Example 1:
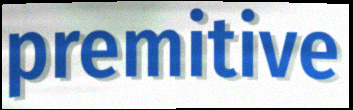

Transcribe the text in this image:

premitive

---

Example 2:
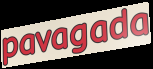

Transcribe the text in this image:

pavagada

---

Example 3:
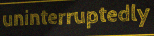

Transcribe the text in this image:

uninterruptedly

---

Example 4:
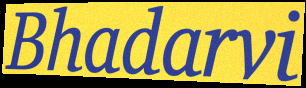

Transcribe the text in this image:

Bhadarvi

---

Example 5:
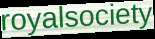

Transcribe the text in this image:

royalsociety